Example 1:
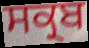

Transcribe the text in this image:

ਸਕ੍ਰਬ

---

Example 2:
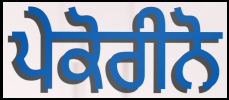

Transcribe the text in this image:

ਪੇਕੋਰੀਨੋ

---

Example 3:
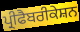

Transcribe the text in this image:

ਪ੍ਰੀਫੈਬਰੀਕੇਸ਼ਨ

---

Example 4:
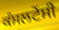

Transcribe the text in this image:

ਕੰਸਲਟੇਂਸੀ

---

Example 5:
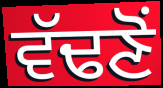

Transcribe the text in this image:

ਵੱਢਣੋਂ